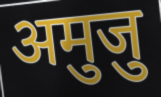
अमुजु